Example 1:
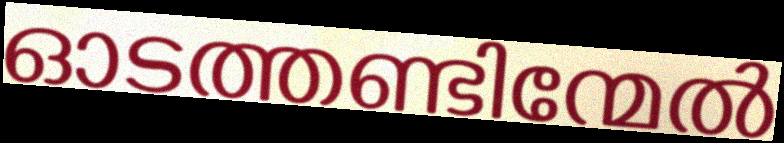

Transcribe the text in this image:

ഓടത്തണ്ടിന്മേൽ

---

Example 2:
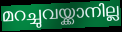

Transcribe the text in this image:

മറച്ചുവയ്ക്കാനില്ല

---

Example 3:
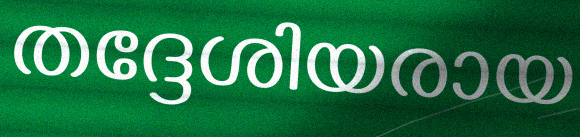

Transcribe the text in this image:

തദ്ദേശിയരായ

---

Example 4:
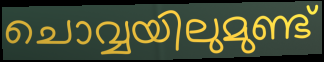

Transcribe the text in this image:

ചൊവ്വയിലുമുണ്ട്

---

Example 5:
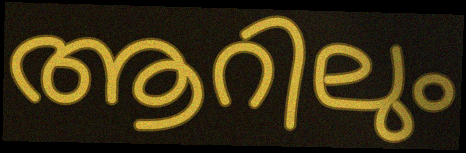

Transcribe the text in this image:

ആറിലും